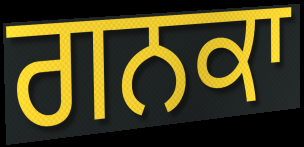
ਗਨਕਾ